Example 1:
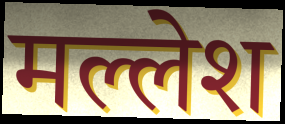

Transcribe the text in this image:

मल्लेश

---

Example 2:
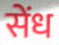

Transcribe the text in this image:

सेंध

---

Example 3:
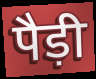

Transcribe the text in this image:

पैड़ी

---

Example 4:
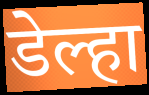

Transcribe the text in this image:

डेल्हा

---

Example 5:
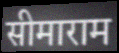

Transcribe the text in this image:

सीमाराम